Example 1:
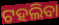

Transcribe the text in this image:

ଟହଲିବା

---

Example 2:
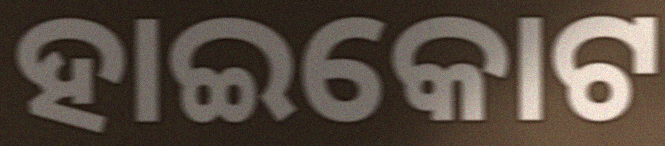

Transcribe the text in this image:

ହାଇକୋଟ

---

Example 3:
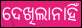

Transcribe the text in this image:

ଦେଖିଲାନାହିଁ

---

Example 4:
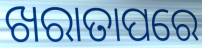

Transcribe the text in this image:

ଖରାତାପରେ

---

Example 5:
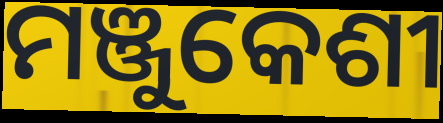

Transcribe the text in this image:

ମଞ୍ଜୁକେଶୀ